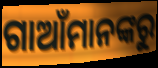
ଗାଆଁମାନଙ୍କରୁ